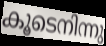
കൂടെനിന്നു